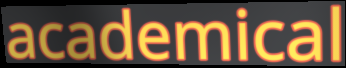
academical